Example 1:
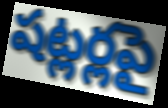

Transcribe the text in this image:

షట్లర్లపై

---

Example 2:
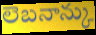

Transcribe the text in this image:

లెబనాన్కు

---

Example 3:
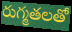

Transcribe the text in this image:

రుగ్మతలతో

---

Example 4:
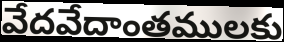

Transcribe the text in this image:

వేదవేదాంతములకు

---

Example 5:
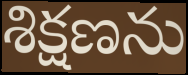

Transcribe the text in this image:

శిక్షణను